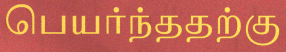
பெயர்ந்ததற்கு